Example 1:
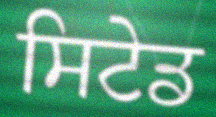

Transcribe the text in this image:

ਸਿਟੇਡ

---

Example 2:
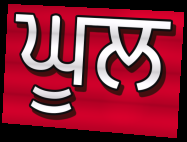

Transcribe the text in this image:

ਘੂਲ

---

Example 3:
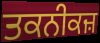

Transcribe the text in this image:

ਤਕਨੀਕਜ਼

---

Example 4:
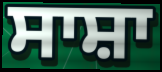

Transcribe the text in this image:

ਸਾਸ਼ਾ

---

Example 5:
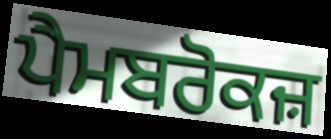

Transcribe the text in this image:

ਪੈਮਬਰੋਕਜ਼